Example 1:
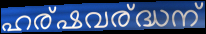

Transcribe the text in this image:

ഹര്ഷവര്ദ്ധന്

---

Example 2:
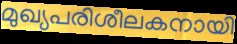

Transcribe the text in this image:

മുഖ്യപരിശീലകനായി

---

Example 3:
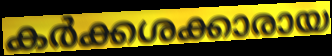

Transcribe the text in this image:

കർക്കശക്കാരായ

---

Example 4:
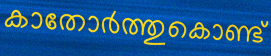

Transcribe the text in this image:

കാതോർത്തുകൊണ്ട്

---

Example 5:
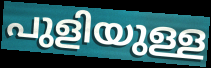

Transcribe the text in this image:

പുളിയുള്ള